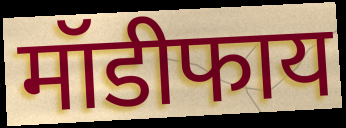
मॉडीफाय